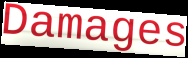
Damages